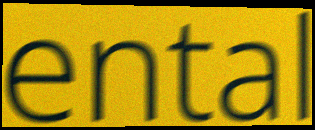
ental